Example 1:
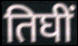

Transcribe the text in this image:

तिघीं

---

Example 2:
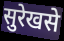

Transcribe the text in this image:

सुरेखसे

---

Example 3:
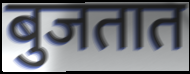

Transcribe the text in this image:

बुजतात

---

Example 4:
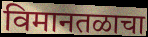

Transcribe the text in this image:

विमानतळाचा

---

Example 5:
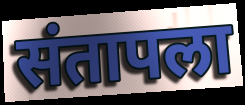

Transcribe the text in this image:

संतापला